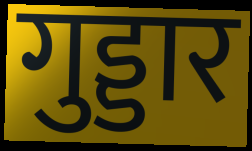
गुड्डार